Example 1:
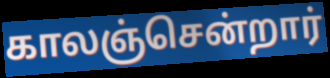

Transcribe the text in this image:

காலஞ்சென்றார்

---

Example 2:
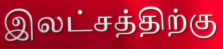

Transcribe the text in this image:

இலட்சத்திற்கு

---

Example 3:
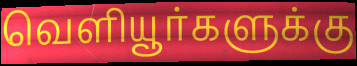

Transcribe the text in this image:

வெளியூர்களுக்கு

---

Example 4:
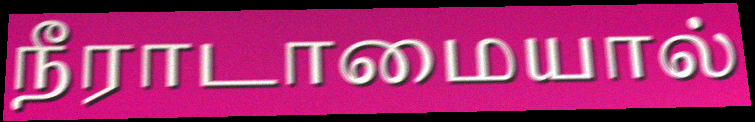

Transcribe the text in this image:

நீராடாமையால்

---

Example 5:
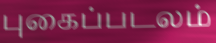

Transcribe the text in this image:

புகைப்படலம்